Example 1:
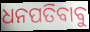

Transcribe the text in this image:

ଧନପତିବାବୁ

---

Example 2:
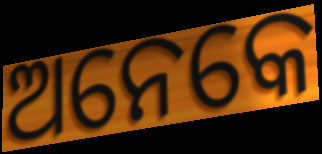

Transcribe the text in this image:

ଅନେକେ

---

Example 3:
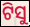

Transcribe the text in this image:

ଟିସୁ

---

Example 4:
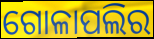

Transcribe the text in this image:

ଗୋଳାପଲିର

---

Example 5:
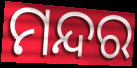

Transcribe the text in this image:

ମନ୍ଦର